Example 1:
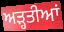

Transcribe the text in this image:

ਅੜ੍ਹਤੀਆਂ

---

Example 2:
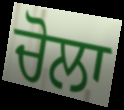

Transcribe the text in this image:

ਚੋਲਾ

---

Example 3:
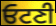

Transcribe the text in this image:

ਓਟਣੀ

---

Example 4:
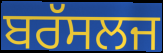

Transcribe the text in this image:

ਬਰੱਸਲਜ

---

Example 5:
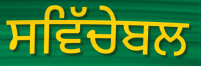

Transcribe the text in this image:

ਸਵਿੱਚੇਬਲ